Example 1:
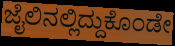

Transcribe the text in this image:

ಜೈಲಿನಲ್ಲಿದ್ದುಕೊಂಡೇ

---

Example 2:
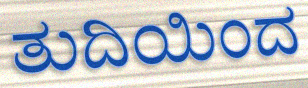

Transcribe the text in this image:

ತುದಿಯಿಂದ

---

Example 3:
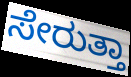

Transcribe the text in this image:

ಸೇರುತ್ತಾ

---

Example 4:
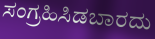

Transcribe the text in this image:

ಸಂಗ್ರಹಿಸಿಡಬಾರದು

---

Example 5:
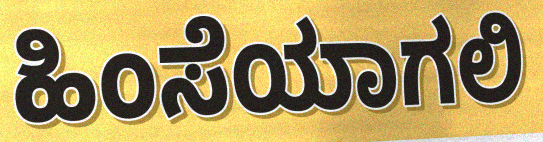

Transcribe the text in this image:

ಹಿಂಸೆಯಾಗಲಿ